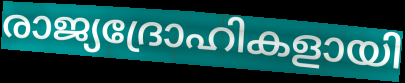
രാജ്യദ്രോഹികളായി